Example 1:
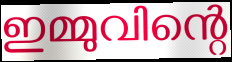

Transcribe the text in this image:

ഇമ്മുവിന്റെ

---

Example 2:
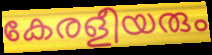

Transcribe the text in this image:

കേരളീയരും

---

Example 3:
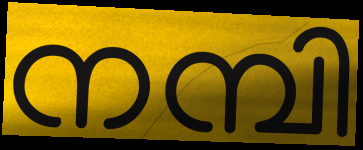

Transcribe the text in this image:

നമ്പി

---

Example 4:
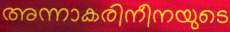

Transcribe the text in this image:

അന്നാകരിനീനയുടെ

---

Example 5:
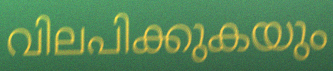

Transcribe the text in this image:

വിലപിക്കുകയും